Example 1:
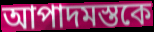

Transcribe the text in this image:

আপাদমস্তকে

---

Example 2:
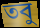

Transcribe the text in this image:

তবু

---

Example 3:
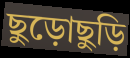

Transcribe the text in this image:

ছুড়োছুড়ি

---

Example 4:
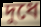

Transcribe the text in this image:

দুধে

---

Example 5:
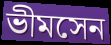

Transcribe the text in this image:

ভীমসেন